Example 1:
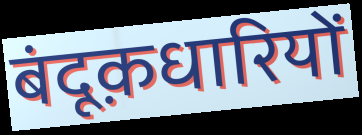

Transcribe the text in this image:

बंदूक़धारियों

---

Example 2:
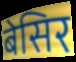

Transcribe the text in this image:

बेसिर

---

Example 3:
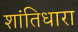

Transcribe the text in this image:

शांतिधारा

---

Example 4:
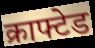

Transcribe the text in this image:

क्राफ्टेड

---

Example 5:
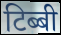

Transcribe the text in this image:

टिब्बी